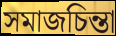
সমাজচিন্তা